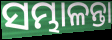
ସମ୍ଭାଳନ୍ତା